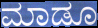
ಮಾಡೂ